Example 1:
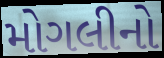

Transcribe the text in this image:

મોગલીનો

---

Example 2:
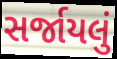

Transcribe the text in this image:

સર્જાયલું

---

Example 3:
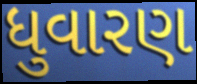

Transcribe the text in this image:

ધુવારણ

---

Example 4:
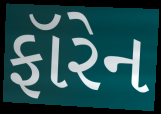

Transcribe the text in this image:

ફૉરેન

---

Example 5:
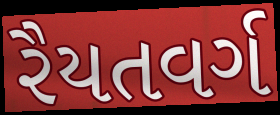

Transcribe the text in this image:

રૈયતવર્ગ